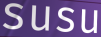
susu